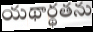
యథార్థతను